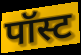
पॉस्ट